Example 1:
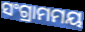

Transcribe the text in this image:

ସଂଗ୍ରାମମୟ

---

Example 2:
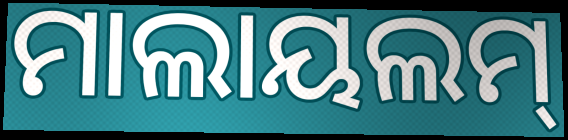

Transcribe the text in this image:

ମାଲାୟଲମ୍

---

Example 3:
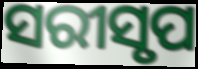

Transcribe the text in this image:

ସରୀସୃପ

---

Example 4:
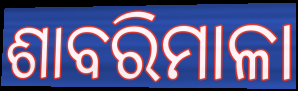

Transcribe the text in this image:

ଶାବରିମାଳା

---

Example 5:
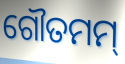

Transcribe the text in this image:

ଗୌତମମ୍